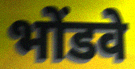
भोंडवे